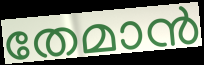
തേമാൻ